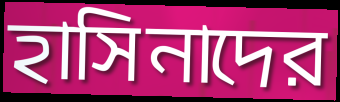
হাসিনাদের